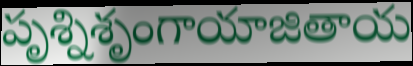
పృశ్నిశృంగాయాజితాయ